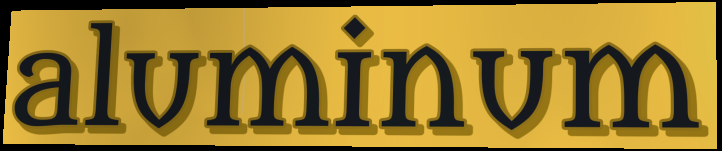
aluminum